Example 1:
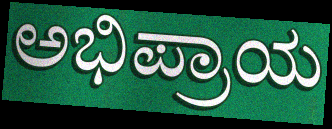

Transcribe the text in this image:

ಅಭಿಪ್ರಾಯ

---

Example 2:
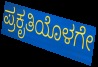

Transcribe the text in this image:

ಪ್ರಕೃತಿಯೊಳಗೇ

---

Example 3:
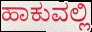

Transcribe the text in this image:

ಹಾಕುವಲ್ಲಿ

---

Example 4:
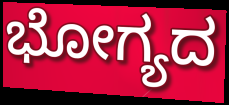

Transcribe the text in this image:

ಭೋಗ್ಯದ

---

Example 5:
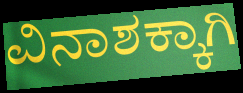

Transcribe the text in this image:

ವಿನಾಶಕ್ಕಾಗಿ